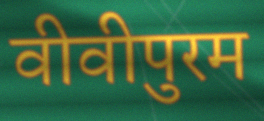
वीवीपुरम